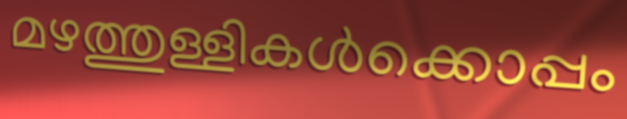
മഴത്തുള്ളികൾക്കൊപ്പം